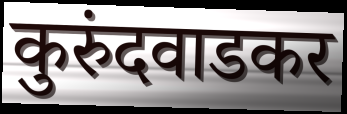
कुरुंदवाडकर